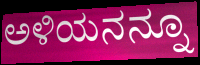
ಅಳಿಯನನ್ನೂ